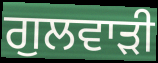
ਗੁਲਵਾੜੀ